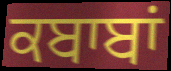
ਕਬਾਬਾਂ